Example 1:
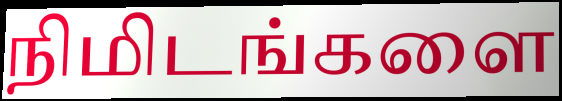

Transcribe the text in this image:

நிமிடங்களை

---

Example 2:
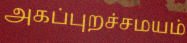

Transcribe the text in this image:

அகப்புறச்சமயம்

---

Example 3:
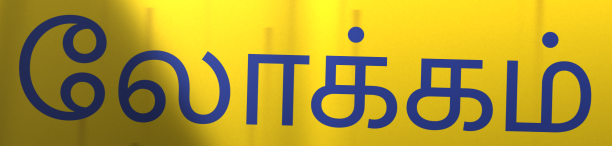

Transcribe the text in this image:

லோக்கம்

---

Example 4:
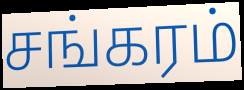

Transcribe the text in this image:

சங்கரம்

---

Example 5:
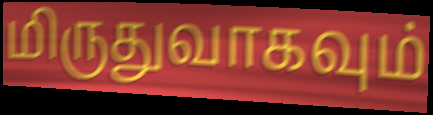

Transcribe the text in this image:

மிருதுவாகவும்